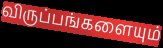
விருப்பங்களையும்